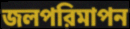
জলপরিমাপন